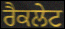
ਰੈਕਲੇਟ